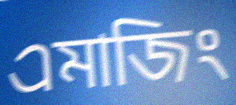
এমাজিং